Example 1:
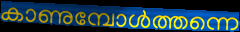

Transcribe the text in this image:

കാണുമ്പോൾത്തന്നെ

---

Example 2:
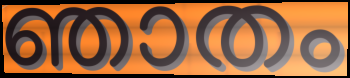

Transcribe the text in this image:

ഞാതം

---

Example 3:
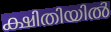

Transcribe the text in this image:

ക്ഷിതിയിൽ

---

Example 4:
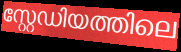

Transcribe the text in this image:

സ്റ്റേഡിയത്തിലെ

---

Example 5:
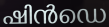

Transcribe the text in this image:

ഷിൻഡെ